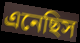
এনেছিস